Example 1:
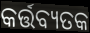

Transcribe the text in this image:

କର୍ତ୍ତବ୍ୟତକ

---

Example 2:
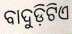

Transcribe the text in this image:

ବାଦୁଡ଼ିଟିଏ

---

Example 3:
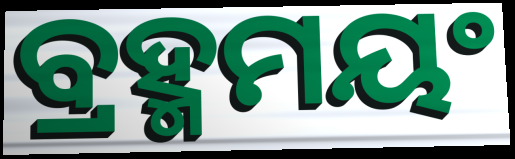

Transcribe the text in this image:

ବ୍ରହ୍ମମୟଂ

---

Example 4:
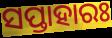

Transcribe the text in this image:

ସପ୍ତାହାରଃ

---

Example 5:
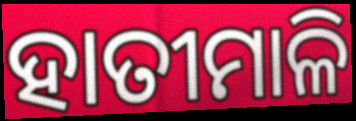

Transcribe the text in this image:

ହାତୀମାଳି